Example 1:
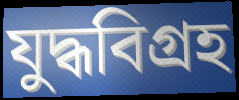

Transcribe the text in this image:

যুদ্ধবিগ্রহ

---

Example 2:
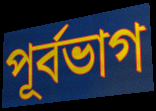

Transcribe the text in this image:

পূর্বভাগ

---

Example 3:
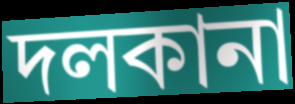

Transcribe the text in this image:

দলকানা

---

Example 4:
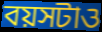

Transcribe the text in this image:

বয়সটাও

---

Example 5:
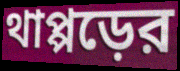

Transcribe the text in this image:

থাপ্পড়ের